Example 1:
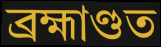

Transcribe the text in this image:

ব্ৰহ্মাণ্ডত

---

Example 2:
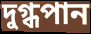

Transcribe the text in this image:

দুগ্ধপান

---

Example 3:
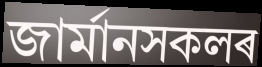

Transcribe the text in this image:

জাৰ্মানসকলৰ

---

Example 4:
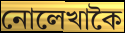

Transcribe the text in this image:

নোলেখাকৈ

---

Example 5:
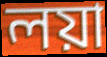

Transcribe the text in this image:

লয়া